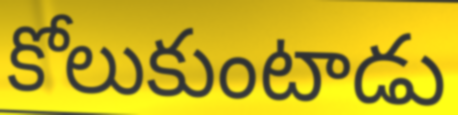
కోలుకుంటాడు